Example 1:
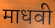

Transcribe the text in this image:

माधवी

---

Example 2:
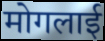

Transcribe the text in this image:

मोगलाई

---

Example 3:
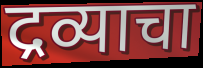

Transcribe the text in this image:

द्रव्याचा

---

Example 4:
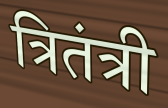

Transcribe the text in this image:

त्रितंत्री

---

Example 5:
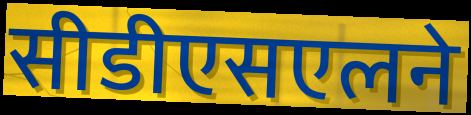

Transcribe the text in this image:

सीडीएसएलने